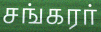
சங்கரர்